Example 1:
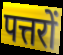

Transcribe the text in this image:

पत्तरों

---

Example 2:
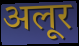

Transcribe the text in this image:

अलूर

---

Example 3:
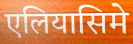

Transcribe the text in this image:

एलियासिमे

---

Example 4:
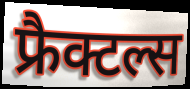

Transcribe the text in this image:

फ्रैक्टल्स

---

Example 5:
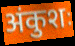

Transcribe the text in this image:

अंकुशः